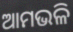
ଆମଭଳି